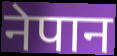
नेपान